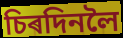
চিৰদিনলৈ